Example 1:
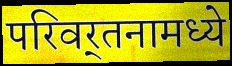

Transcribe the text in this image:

परिवर्तनामध्ये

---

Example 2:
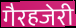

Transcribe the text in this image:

गैरहजेरी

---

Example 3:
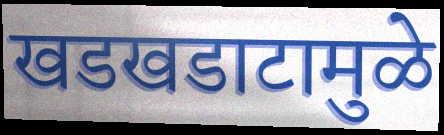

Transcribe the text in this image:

खडखडाटामुळे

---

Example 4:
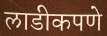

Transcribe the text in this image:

लाडीकपणे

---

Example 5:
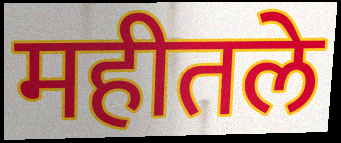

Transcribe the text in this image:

महीतले